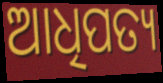
ଆଧିପତ୍ୟ